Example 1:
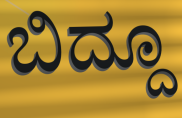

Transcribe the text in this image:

ಬಿದ್ದೂ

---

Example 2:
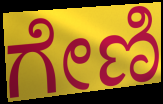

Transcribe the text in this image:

ಗೇಣಿ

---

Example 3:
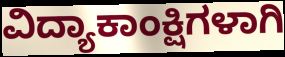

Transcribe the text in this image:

ವಿದ್ಯಾಕಾಂಕ್ಷಿಗಳಾಗಿ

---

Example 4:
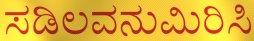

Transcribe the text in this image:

ಸಡಿಲವನುಮಿರಿಸಿ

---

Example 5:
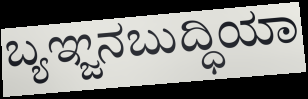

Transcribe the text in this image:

ಬ್ಯಞ್ಜನಬುದ್ಧಿಯಾ